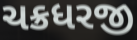
ચક્રધરજી